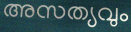
അസത്യവും